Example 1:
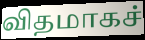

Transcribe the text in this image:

விதமாகச்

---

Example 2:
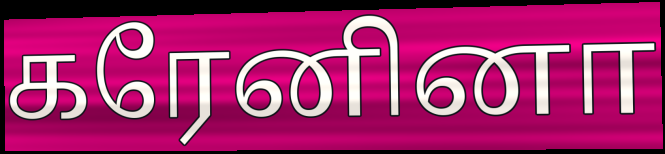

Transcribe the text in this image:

கரேனினா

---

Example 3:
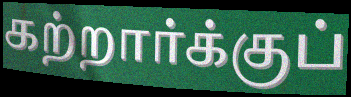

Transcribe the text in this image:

கற்றார்க்குப்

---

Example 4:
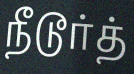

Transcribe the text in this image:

நீடூர்த்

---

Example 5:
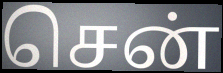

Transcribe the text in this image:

சென்